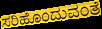
ಸರಿಹೊಂದುವಂತೆ